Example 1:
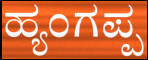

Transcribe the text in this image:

ಹ್ಯಂಗಪ್ಪ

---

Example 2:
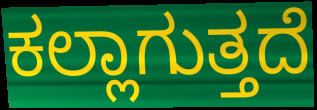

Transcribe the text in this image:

ಕಲ್ಲಾಗುತ್ತದೆ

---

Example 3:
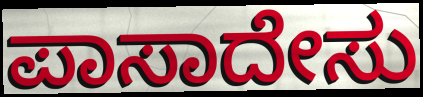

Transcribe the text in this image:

ಪಾಸಾದೇಸು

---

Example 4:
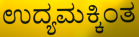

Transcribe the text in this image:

ಉದ್ಯಮಕ್ಕಿಂತ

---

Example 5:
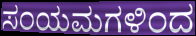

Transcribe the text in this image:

ಸಂಯಮಗಳಿಂದ